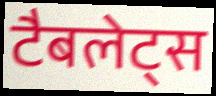
टैबलेट्स